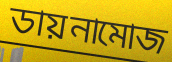
ডায়নামোজ